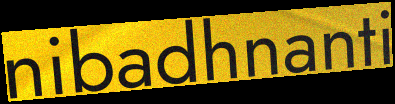
nibadhnanti